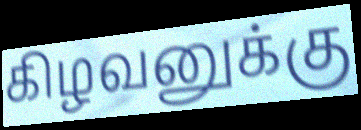
கிழவனுக்கு